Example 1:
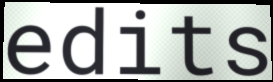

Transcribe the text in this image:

edits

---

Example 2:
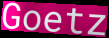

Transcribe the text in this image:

Goetz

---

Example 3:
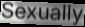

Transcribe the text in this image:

Sexually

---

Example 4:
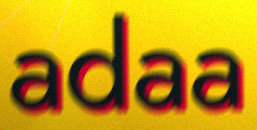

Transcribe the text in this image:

adaa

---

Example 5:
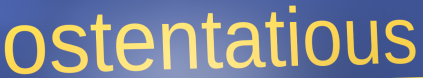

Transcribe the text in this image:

ostentatious